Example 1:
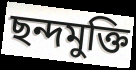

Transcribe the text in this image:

ছন্দমুক্তি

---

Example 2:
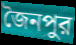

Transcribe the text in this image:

জৈনপুর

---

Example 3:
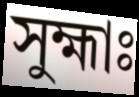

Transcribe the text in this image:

সুহ্মাঃ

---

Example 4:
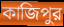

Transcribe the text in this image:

কাজিপুর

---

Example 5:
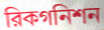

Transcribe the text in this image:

রিকগনিশন